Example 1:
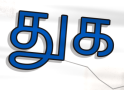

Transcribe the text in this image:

துக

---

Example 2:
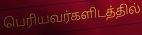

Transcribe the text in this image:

பெரியவர்களிடத்தில்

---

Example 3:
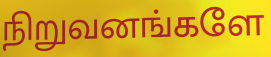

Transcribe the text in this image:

நிறுவனங்களே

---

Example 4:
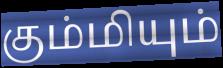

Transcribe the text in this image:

கும்மியும்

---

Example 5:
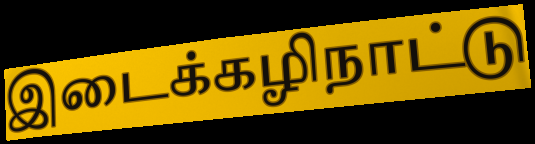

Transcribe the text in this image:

இடைக்கழிநாட்டு